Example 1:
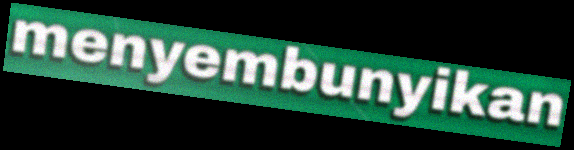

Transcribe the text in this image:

menyembunyikan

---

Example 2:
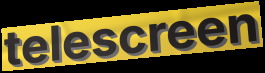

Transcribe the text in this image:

telescreen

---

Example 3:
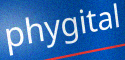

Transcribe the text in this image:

phygital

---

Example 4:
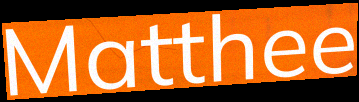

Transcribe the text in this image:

Matthee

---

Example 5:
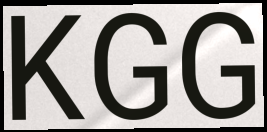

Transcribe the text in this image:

KGG